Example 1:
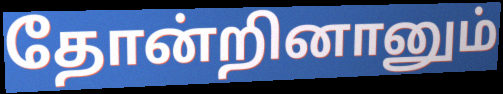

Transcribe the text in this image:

தோன்றினானும்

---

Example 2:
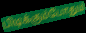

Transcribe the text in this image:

பிடிக்கும்போதும்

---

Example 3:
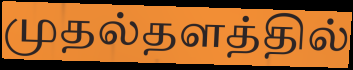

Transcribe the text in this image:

முதல்தளத்தில்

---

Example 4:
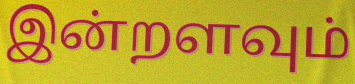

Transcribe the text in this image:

இன்றளவும்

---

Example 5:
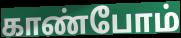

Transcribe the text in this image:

காண்போம்